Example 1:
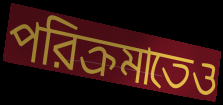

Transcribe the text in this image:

পরিক্রমাতেও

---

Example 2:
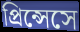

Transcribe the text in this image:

প্রিন্সেসে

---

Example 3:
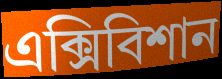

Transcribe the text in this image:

এক্সিবিশান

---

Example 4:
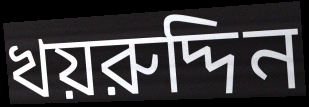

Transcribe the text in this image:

খয়রুদ্দিন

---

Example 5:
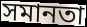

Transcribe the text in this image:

সমানতা